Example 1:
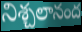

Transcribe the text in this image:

నిశ్చలానంద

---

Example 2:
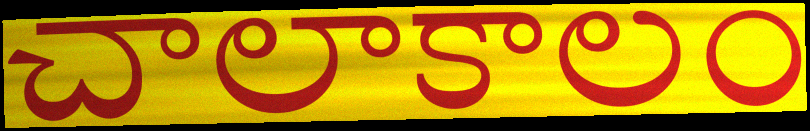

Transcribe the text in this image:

చాలాకాలం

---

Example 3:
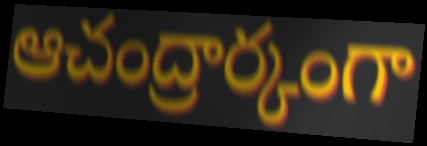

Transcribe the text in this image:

ఆచంద్రార్కంగా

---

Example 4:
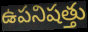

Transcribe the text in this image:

ఉపనిషత్తు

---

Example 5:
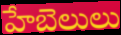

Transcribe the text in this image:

హేబెలులు